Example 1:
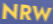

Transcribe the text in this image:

NRW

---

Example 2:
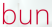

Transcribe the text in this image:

bun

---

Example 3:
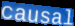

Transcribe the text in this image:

causal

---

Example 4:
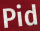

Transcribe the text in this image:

Pid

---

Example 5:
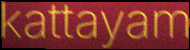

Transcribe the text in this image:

kattayam